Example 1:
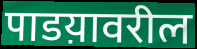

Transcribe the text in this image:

पाडय़ावरील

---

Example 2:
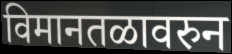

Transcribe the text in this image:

विमानतळावरुन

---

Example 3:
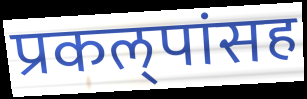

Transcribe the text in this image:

प्रकल्पांसह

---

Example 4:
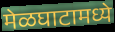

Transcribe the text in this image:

मेळघाटामध्ये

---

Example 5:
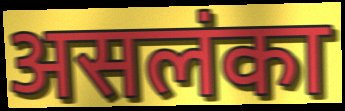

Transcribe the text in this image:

असलंका